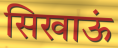
सिखाऊं